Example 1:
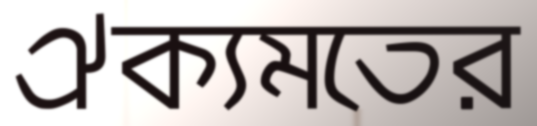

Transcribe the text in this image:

ঐক্যমতের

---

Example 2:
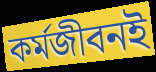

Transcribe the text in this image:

কর্মজীবনই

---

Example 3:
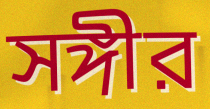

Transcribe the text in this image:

সঙ্গীর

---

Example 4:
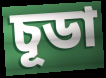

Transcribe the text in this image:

চূডা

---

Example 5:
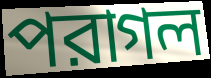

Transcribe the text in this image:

পরাগল